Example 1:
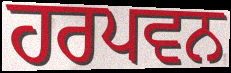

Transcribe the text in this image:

ਹਰਪਵਨ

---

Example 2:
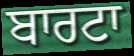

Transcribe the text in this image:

ਬਾਰਟਾ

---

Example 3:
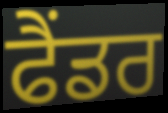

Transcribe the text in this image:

ਫੈਂਡਰ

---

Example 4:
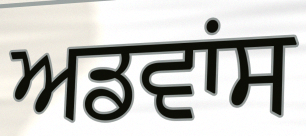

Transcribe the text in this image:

ਅਡਵਾਂਸ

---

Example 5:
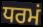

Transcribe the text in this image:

ਧਰਮਂ